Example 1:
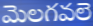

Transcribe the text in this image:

మెలగవలె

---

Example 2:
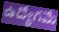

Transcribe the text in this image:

ఉద్యోగమే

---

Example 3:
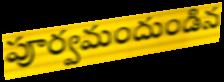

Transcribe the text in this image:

పూర్వమందుండిన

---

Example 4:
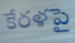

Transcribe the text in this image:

కేరళపై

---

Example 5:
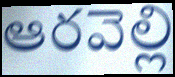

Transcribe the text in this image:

ఆరవెల్లి